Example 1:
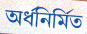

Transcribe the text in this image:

অর্ধনির্মিত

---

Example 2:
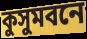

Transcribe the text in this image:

কুসুমবনে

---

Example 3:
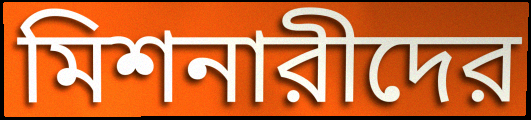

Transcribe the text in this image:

মিশনারীদের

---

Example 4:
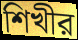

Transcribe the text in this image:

শিখীর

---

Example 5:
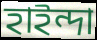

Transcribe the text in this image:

হাইন্দা